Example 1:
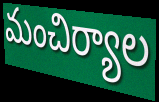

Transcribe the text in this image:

మంచిర్యాల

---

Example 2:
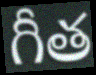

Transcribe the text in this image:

గీత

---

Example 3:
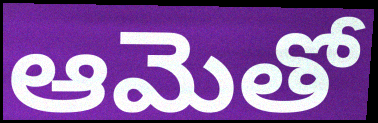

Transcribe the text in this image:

ఆమెతో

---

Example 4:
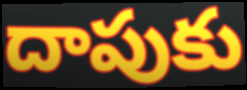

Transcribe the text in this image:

దాపుకు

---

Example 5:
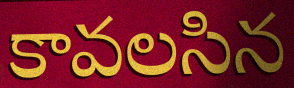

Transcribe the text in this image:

కావలసిన